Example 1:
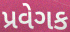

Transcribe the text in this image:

પ્રવેગક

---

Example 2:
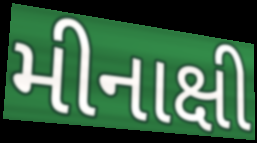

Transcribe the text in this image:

મીનાક્ષી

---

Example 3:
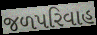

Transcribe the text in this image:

જળપરિવાહ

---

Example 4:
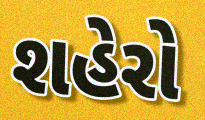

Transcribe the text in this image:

શહેરો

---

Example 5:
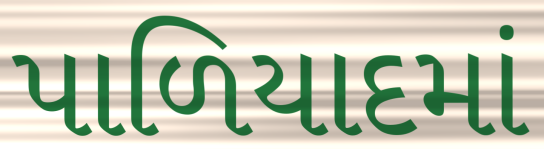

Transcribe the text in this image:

પાળિયાદમાં